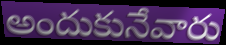
అందుకునేవారు